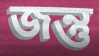
জন্তু